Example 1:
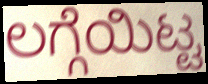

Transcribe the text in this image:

ಲಗ್ಗೆಯಿಟ್ಟ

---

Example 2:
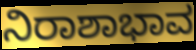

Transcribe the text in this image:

ನಿರಾಶಾಭಾವ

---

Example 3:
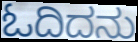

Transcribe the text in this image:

ಓದಿದನು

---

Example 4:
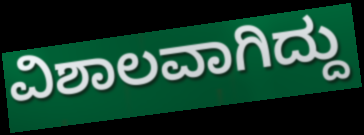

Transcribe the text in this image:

ವಿಶಾಲವಾಗಿದ್ದು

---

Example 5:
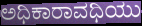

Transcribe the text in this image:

ಅಧಿಕಾರಾವಧಿಯು